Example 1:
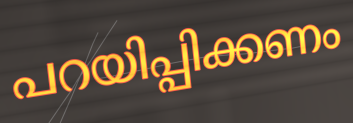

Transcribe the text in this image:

പറയിപ്പിക്കണം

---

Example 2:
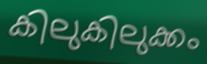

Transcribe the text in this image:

കിലുകിലുക്കം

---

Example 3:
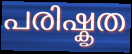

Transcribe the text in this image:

പരിഷ്കൃത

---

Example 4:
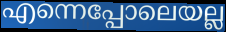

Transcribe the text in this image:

എന്നെപ്പോലെയല്ല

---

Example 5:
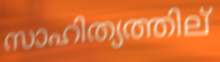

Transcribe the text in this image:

സാഹിത്യത്തില്